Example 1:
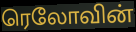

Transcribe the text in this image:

ரெலோவின்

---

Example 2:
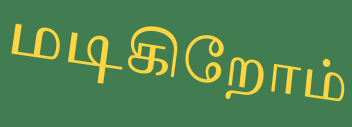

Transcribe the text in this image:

மடிகிறோம்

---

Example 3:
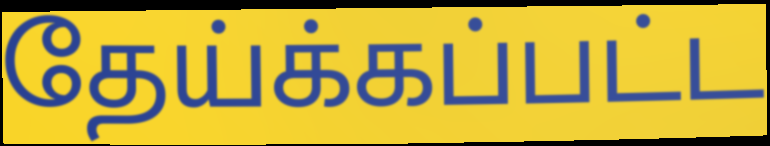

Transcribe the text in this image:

தேய்க்கப்பட்ட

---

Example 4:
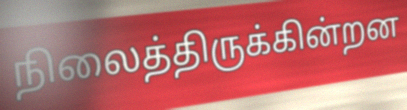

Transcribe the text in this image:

நிலைத்திருக்கின்றன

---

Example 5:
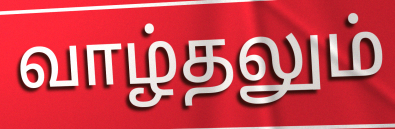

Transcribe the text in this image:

வாழ்தலும்